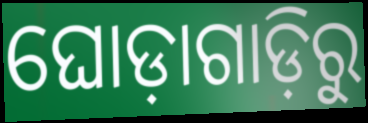
ଘୋଡ଼ାଗାଡ଼ିରୁ